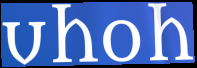
uhoh